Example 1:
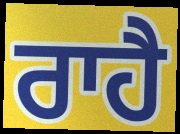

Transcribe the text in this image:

ਰਾਹੈ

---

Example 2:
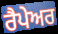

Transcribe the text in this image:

ਰੈਪੇਅਰ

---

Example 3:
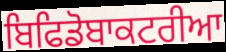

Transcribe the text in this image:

ਬਿਫਿਡੋਬਾਕਟਰੀਆ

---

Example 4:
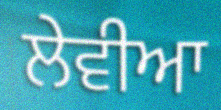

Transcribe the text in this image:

ਲੇਵੀਆ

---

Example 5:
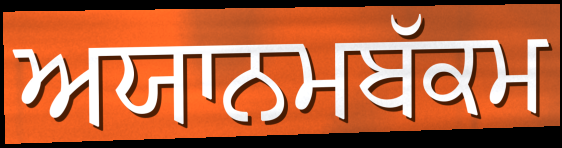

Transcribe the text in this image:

ਅਯਾਨਮਬੱਕਮ